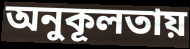
অনুকূলতায়